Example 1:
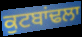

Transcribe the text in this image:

ਕੁਟਬਾਂਢਲਾ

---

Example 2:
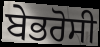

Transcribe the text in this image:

ਬੇਭਰੋਸੀ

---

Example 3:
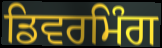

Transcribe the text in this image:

ਡਿਵਰਮਿੰਗ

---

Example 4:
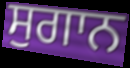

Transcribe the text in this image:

ਸੁਗਾਨ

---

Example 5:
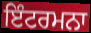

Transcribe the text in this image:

ਇੰਟਰਮਨਾ